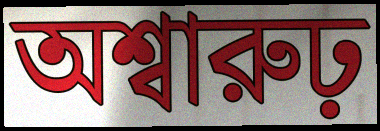
অশ্বারুঢ়